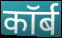
कॉर्ब